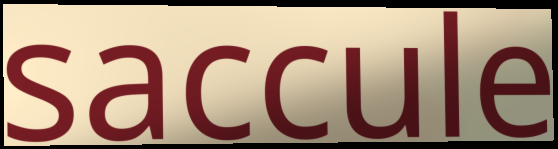
saccule